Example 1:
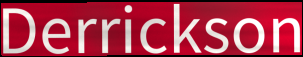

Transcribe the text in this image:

Derrickson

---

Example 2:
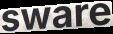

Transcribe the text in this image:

sware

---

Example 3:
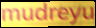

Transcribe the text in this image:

mudreyu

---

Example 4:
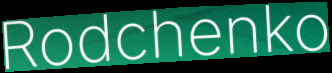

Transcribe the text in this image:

Rodchenko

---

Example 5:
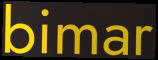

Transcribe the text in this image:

bimar